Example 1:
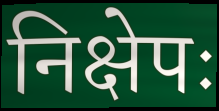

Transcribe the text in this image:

निक्षेपः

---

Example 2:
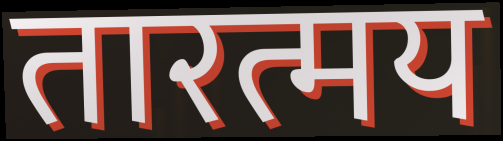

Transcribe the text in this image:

तारत्मय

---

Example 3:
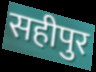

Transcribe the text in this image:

सहीपुर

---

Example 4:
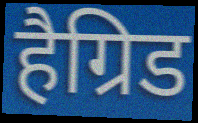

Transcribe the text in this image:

हैग्रिड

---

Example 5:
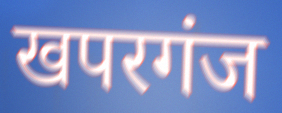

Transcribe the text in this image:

खपरगंज